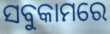
ସବୁକାମରେ